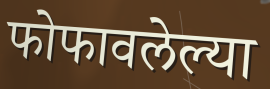
फोफावलेल्या